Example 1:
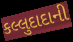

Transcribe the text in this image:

કલ્લુદાદાની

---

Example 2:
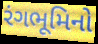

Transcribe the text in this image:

રંગભૂમિનો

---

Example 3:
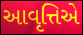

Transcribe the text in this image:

આવૃત્તિએ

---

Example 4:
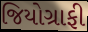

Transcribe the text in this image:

જિયોગ્રાફી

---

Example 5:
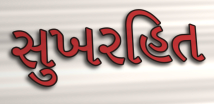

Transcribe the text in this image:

સુખરહિત